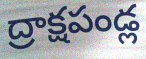
ద్రాక్షపండ్ల